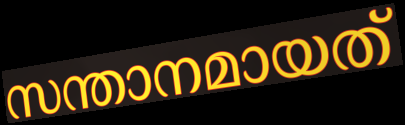
സന്താനമായത്